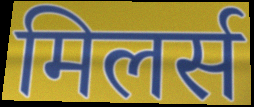
मिलर्स